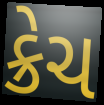
ક્રેચ